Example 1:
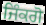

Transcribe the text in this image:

ਜਿੰਕਗੋ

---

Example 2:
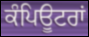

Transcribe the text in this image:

ਕੰਪਿਊਟਰਾਂ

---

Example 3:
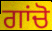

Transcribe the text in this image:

ਗਾਂਚੋ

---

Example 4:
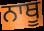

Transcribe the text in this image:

ਨਾਥੂ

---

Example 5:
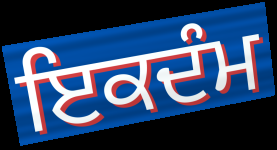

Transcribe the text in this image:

ਇਕਦੰਮ